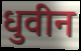
धुवीन